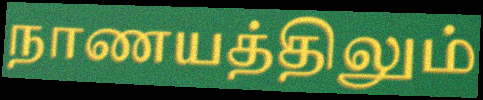
நாணயத்திலும்